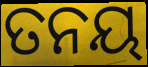
ତନୟ